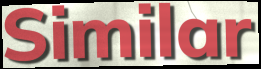
Similar